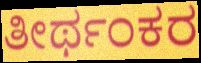
ತೀರ್ಥಂಕರ